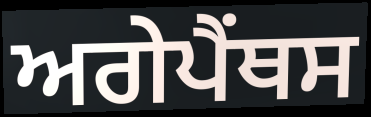
ਅਗੇਪੈਂਥਸ